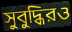
সুবুদ্ধিরও